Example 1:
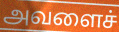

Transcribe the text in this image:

அவளைச்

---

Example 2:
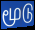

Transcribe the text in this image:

மூடு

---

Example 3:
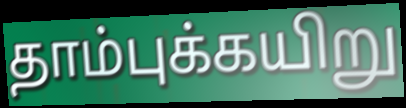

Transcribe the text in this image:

தாம்புக்கயிறு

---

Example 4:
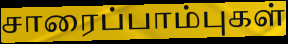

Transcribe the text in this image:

சாரைப்பாம்புகள்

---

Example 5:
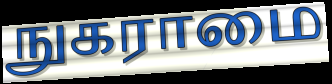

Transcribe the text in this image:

நுகராமை